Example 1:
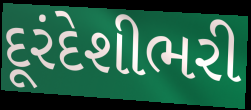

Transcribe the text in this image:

દૂરંદેશીભરી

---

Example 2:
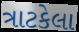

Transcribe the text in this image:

ત્રાટકેલા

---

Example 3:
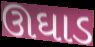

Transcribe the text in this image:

ઊઘાડ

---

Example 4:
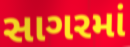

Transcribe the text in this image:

સાગરમાં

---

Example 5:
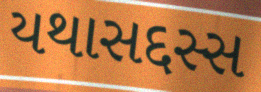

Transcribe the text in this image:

યથાસદ્દસ્સ